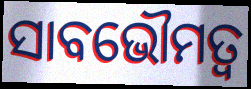
ସାବଭୌମତ୍ୱ